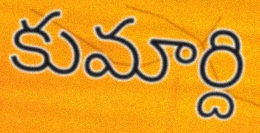
కుమార్ది